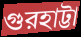
গুরহাট্টা